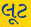
લૂટ